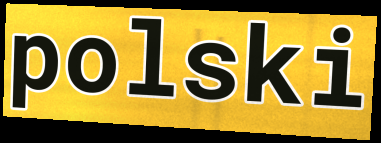
polski